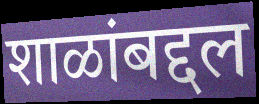
शाळांबद्दल